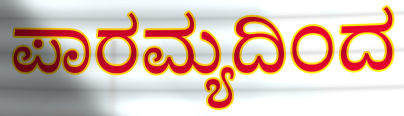
ಪಾರಮ್ಯದಿಂದ